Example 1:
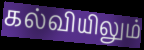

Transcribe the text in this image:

கல்வியிலும்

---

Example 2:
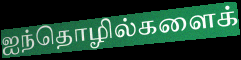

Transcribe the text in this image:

ஐந்தொழில்களைக்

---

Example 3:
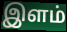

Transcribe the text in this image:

இளம்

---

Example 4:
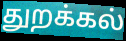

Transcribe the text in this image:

துறக்கல்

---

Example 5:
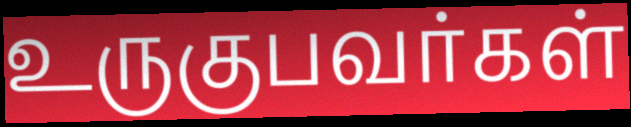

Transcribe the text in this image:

உருகுபவர்கள்